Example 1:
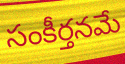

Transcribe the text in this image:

సంకీర్తనమే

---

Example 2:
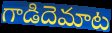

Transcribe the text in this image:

గాడిదెమాట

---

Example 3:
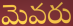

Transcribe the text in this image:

మెవరు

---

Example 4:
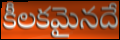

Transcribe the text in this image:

కీలకమైనదే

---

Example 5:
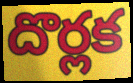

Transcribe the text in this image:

దొర్లక